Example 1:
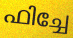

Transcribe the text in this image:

ഫിച്ചേ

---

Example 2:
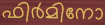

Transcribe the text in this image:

ഫിർമിനോ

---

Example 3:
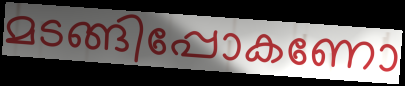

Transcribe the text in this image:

മടങ്ങിപ്പോകണോ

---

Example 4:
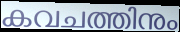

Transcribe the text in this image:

കവചത്തിനും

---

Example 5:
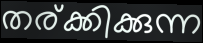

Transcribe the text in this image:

തര്ക്കിക്കുന്ന